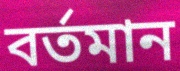
বৰ্তমান